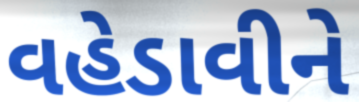
વહેડાવીને